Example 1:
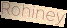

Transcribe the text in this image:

Rohiney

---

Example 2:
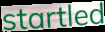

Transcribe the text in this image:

startled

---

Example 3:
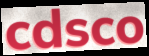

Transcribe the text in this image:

cdsco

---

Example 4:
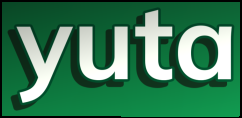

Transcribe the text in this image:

yuta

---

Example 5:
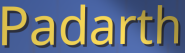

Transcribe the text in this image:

Padarth